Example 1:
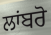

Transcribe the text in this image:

ਲਾਂਬਰੋ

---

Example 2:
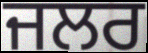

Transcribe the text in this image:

ਜਲਰ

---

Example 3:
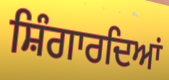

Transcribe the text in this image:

ਸ਼ਿੰਗਾਰਦਿਆਂ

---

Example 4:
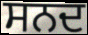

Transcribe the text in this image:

ਸਨਦ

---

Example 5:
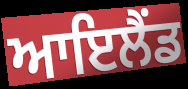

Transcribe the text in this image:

ਆਇਲੈੰਡ